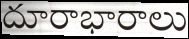
దూరాభారాలు